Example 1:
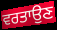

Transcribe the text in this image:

ਵਰਤਾਉਣ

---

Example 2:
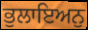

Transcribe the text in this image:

ਭੁਲਾਇਅਨੁ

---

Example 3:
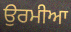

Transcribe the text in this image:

ਉਰਮੀਆ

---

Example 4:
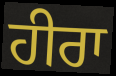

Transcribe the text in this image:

ਹੀਰਾ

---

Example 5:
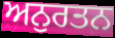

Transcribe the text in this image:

ਅਨੁਰਤਨ